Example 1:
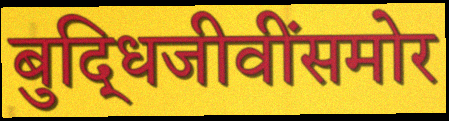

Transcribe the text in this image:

बुद्धिजीवींसमोर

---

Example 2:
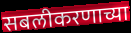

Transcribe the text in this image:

सबलीकरणाच्या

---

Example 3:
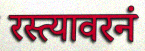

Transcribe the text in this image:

रस्त्यावरनं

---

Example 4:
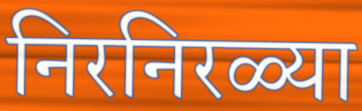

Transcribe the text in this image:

निरनिरळ्या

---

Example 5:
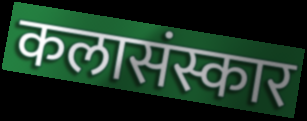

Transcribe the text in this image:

कलासंस्कार